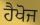
ਹੈਖੋਜ